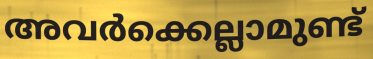
അവർക്കെല്ലാമുണ്ട്